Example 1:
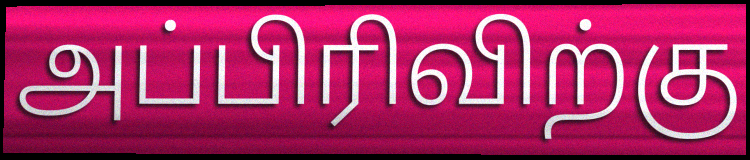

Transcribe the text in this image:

அப்பிரிவிற்கு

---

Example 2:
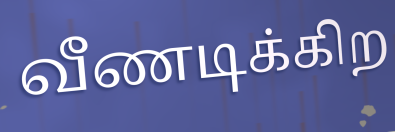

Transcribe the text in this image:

வீணடிக்கிற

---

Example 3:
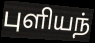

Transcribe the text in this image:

புளியந்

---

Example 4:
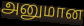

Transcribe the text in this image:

அனுமான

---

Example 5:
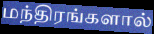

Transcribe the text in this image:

மந்திரங்களால்